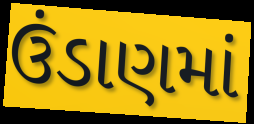
ઉંડાણમાં